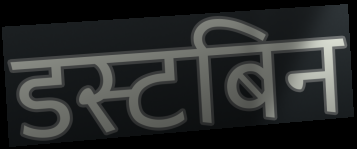
डस्टबिन